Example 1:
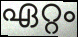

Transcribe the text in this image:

ഏറ്റം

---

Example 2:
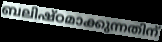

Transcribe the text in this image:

ബലിഷ്ഠമാക്കുന്നതിന്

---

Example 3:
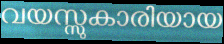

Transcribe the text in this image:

വയസ്സുകാരിയായ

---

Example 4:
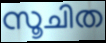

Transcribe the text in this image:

സൂചിത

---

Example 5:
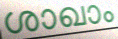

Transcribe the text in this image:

ശാഖാം